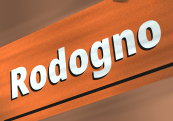
Rodogno